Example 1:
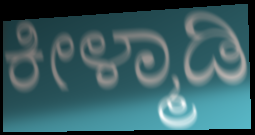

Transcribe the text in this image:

ಕೀಳ್ಮಾಡಿ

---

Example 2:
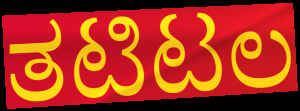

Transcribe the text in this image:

ತಟಿಟಲ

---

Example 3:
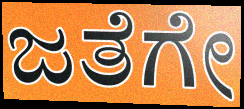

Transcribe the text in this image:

ಜತೆಗೇ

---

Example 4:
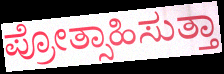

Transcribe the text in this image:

ಪ್ರೋತ್ಸಾಹಿಸುತ್ತಾ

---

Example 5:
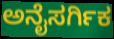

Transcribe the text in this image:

ಅನೈಸರ್ಗಿಕ